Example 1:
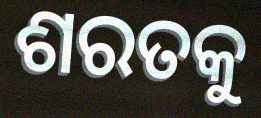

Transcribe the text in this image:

ଶରତକୁ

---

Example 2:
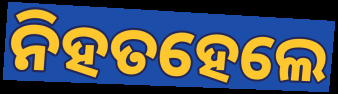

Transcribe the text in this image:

ନିହତହେଲେ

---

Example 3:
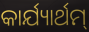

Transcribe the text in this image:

କାର୍ଯ୍ୟାର୍ଥମ୍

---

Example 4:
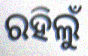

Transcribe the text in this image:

ରହିଲୁଁ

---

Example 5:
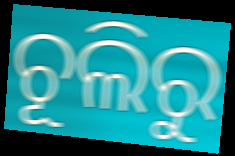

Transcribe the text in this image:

ଚୂଲିରୁ